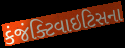
કંજંક્ટિવાઇટિસના